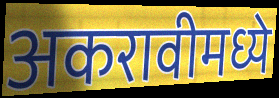
अकरावीमध्ये